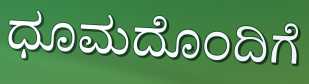
ಧೂಮದೊಂದಿಗೆ